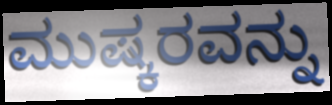
ಮುಷ್ಕರವನ್ನು